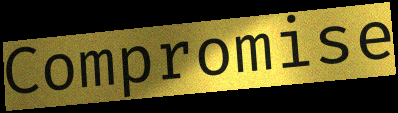
Compromise